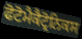
ਫੋਟੋਮੈਕੈਟ੍ਰੋਨਿਕਸ